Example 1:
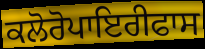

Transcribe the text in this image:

ਕਲੋਰੋਪਾਇਰੀਫਾਸ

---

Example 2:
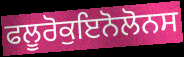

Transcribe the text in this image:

ਫਲੂਰੋਕੁਇਨੋਲੋਨਸ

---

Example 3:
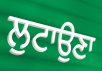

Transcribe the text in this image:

ਲੁਟਾਉਣਾ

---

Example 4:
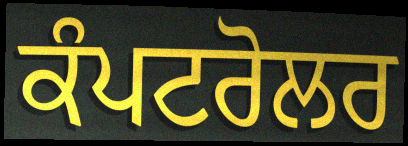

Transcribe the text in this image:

ਕੰਪਟਰੋਲਰ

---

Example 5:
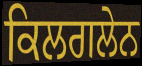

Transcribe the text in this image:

ਕਿਲਗਲੇਨ